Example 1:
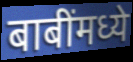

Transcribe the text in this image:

बाबींमध्ये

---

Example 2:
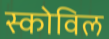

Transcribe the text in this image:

स्कोविल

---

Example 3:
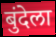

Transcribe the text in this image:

बुंदेला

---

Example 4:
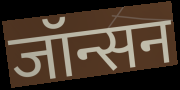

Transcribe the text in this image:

जॉन्सन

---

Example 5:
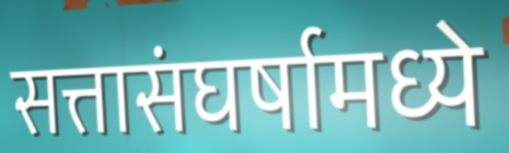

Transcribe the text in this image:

सत्तासंघर्षामध्ये